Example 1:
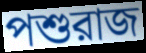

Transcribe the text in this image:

পশুরাজ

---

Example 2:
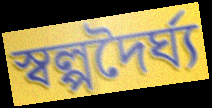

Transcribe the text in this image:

স্বল্পদৈর্ঘ্য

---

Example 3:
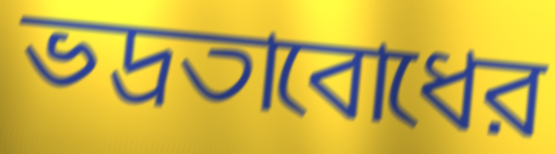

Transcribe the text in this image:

ভদ্রতাবোধের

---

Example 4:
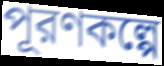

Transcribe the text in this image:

পূরণকল্পে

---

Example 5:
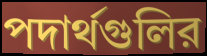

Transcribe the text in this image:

পদার্থগুলির